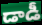
డాడీ